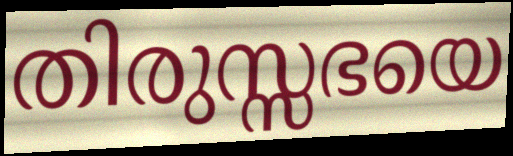
തിരുസ്സഭയെ